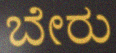
ಬೇರು